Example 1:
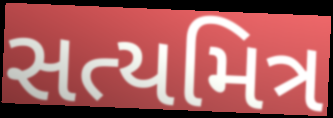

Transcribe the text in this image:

સત્યમિત્ર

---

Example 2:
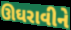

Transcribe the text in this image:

ઊઘરાવીને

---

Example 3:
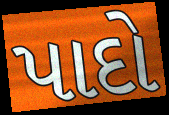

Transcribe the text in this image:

પાદો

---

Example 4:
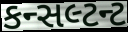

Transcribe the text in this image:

કન્સલ્ટન્ટ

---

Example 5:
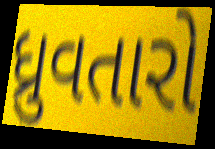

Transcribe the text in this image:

ધ્રુવતારો